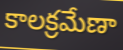
కాలక్రమేణా